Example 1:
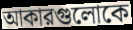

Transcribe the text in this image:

আকারগুলোকে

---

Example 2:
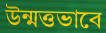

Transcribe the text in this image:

উন্মত্তভাবে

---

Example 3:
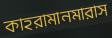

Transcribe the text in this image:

কাহরামানমারাস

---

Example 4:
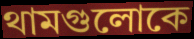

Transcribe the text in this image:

থামগুলোকে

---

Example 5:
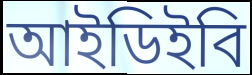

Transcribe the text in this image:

আইডিইবি